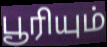
பூரியும்